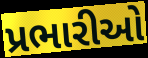
પ્રભારીઓ